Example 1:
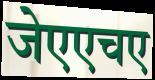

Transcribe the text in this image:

जेएएचए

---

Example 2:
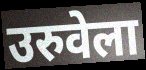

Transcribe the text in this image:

उरुवेला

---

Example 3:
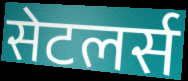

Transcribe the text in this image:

सेटलर्स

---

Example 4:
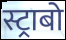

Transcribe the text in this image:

स्ट्राबो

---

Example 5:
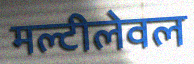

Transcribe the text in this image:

मल्टीलेवल